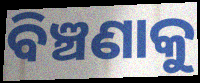
ବିଞ୍ଚଣାକୁ